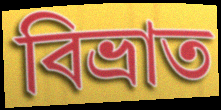
বিভ্ৰাত